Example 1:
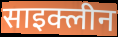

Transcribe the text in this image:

साइक्लीन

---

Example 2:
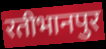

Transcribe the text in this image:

रतीभानपुर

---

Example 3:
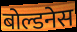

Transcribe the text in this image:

बोल्डनेस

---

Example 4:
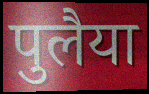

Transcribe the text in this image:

पुलैया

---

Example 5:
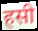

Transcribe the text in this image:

हसी